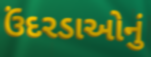
ઉંદરડાઓનું